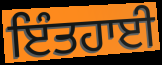
ਇੰਤਹਾਈ